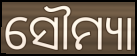
ସୌମ୍ୟା